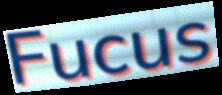
Fucus